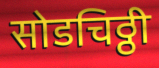
सोडचिठ्ठी